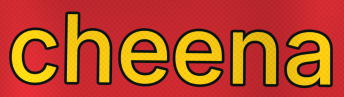
cheena